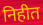
निहीत